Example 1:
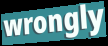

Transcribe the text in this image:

wrongly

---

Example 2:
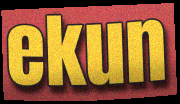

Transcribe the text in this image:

ekun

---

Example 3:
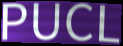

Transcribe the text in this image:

PUCL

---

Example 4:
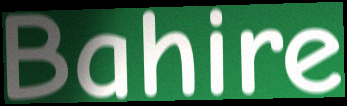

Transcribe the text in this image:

Bahire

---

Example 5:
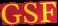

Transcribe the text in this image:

GSF